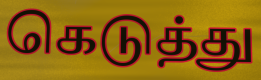
கெடுத்து